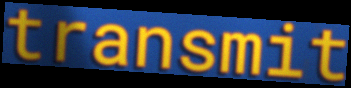
transmit